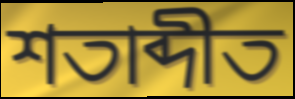
শতাব্দীত